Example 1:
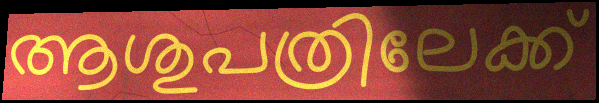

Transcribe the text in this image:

ആശുപത്രിലേക്ക്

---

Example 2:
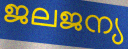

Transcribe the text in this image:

ജലജന്യ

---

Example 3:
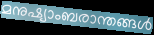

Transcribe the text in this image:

മനുഷ്യാംബരാന്തങ്ങൾ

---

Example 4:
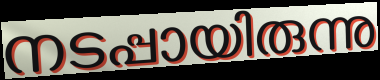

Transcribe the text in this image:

നടപ്പായിരുന്നു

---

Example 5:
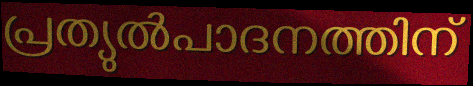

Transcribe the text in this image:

പ്രത്യുൽപാദനത്തിന്